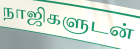
நாஜிகளுடன்